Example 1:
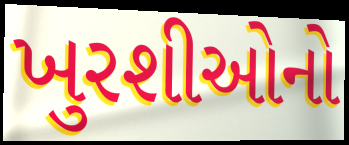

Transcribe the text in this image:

ખુરશીઓનો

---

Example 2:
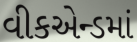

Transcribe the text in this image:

વીકએન્ડમાં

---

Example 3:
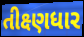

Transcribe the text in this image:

તીક્ષ્ણધાર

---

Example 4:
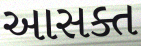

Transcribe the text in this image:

આસક્ત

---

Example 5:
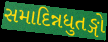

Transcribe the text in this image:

સમાદિન્નધુતઙ્ગો